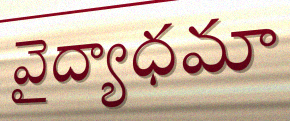
వైద్యాధమా